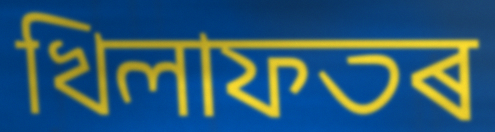
খিলাফতৰ